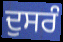
ਦੁਸਰੰ